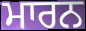
ਮਾਰਨ